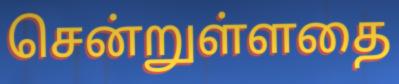
சென்றுள்ளதை